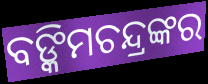
ବଙ୍କିମଚନ୍ଦ୍ରଙ୍କର